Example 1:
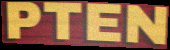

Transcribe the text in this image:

PTEN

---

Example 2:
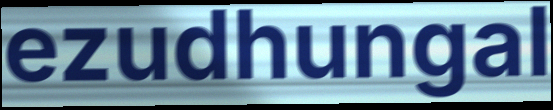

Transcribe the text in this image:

ezudhungal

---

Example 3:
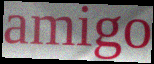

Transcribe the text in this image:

amigo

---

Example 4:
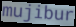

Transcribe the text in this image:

mujibur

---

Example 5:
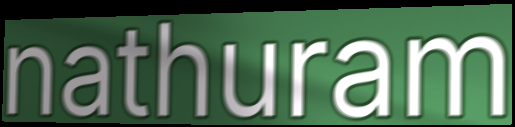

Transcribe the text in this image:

nathuram